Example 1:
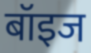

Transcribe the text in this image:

बॉइज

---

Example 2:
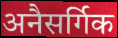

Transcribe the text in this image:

अनैसर्गिक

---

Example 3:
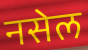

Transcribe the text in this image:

नसेल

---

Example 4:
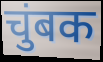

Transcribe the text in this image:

चुंबक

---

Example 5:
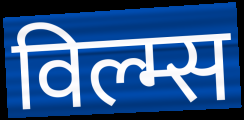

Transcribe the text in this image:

विल्म्स